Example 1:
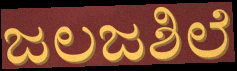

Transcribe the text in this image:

ಜಲಜಶಿಲೆ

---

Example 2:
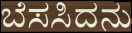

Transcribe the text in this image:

ಬೆಸಸಿದನು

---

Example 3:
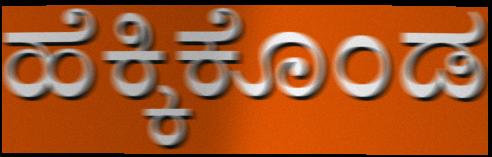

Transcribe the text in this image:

ಹೆಕ್ಕಿಕೊಂಡ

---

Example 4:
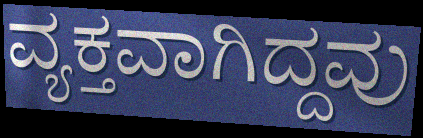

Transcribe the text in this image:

ವ್ಯಕ್ತವಾಗಿದ್ದವು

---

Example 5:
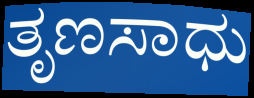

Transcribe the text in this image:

ತೃಣಸಾಧು